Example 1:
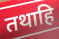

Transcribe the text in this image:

तथाहि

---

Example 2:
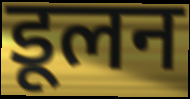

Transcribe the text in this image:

डूलन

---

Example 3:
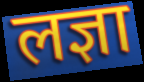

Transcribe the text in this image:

लज्ञा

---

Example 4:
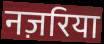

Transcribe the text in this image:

नज़रिया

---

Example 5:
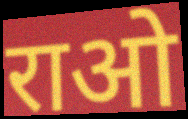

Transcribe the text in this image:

राओ